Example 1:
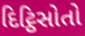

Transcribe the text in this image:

દિટ્ઠિસોતો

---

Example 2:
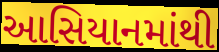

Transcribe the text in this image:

આસિયાનમાંથી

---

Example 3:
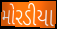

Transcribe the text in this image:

મોરડીયા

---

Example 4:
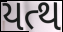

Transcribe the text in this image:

યત્થ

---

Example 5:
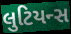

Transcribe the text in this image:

લુટિયન્સ